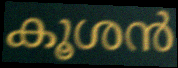
കൂശൻ